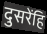
दुसरेंहि